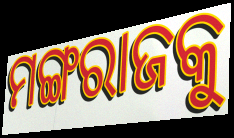
ମଙ୍ଗରାଜକୁ